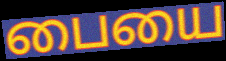
பையை